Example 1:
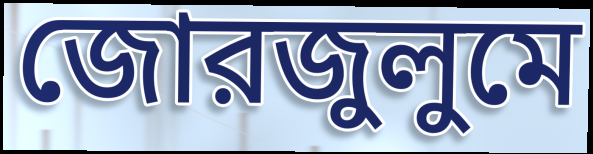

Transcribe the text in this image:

জোরজুলুমে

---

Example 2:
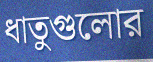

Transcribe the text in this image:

ধাতুগুলোর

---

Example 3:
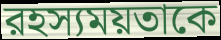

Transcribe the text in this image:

রহস্যময়তাকে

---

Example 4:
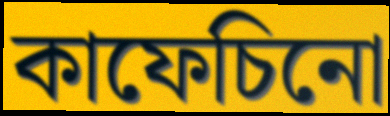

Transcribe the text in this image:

কাফেচিনো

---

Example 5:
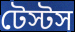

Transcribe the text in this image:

টেস্টস